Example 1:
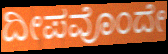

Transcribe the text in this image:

ದೀಪವೊಂದೇ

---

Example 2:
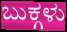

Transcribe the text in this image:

ಬುಕ್ಗಳು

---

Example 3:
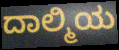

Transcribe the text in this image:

ದಾಲ್ಮಿಯ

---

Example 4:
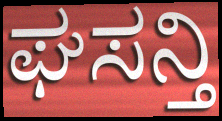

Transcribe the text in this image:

ಘಸನ್ತಿ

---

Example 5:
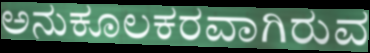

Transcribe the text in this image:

ಅನುಕೂಲಕರವಾಗಿರುವ